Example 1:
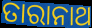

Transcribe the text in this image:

ତାରାନାଥ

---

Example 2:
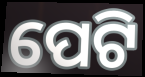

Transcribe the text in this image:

ପେଟି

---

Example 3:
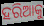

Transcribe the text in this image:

ହରିଆକୁ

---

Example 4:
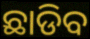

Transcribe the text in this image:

ଛାଡିବ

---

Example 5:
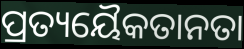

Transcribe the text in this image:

ପ୍ରତ୍ୟୟୈକତାନତା